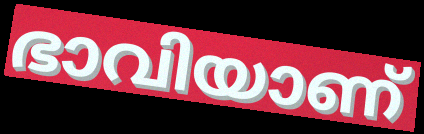
ഭാവിയാണ്